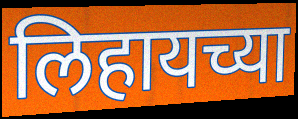
लिहायच्या